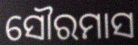
ସୌରମାସ